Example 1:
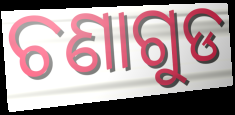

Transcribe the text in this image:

ଚଣାଗୁଡ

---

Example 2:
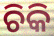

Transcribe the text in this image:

ଚିକି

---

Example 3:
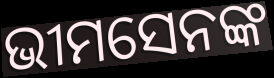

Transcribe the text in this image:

ଭୀମସେନଙ୍କ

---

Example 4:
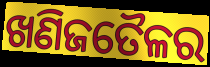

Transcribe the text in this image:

ଖଣିଜତୈଳର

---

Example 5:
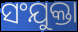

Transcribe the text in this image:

ସଂଯୁକ୍ତା